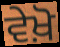
ਵੇਖ਼ੋ